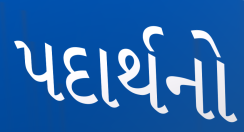
પદાર્થનો